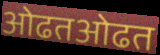
ओढतओढत